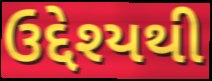
ઉદ્દેશ્યથી